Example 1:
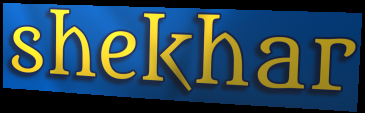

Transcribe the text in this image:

shekhar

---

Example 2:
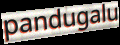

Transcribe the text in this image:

pandugalu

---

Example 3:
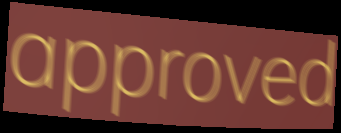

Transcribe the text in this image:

approved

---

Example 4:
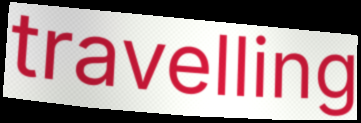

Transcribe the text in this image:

travelling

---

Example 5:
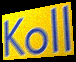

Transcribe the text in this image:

Koll